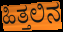
ಹಿತ್ತಲಿನ